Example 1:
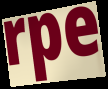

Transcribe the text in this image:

rpe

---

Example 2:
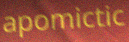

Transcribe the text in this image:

apomictic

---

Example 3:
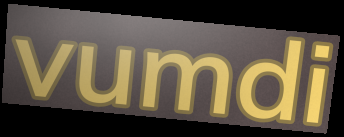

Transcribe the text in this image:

vumdi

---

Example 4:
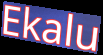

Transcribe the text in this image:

Ekalu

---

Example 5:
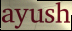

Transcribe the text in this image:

ayush